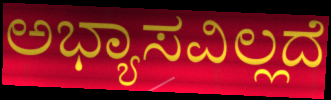
ಅಭ್ಯಾಸವಿಲ್ಲದೆ